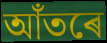
আঁতৰে